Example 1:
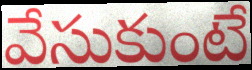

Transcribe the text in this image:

వేసుకుంటే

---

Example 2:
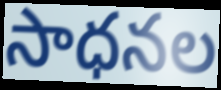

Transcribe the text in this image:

సాధనల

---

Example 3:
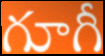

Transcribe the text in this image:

గూగీ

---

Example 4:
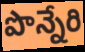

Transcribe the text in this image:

పొన్నేరి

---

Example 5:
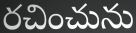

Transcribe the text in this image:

రచించును